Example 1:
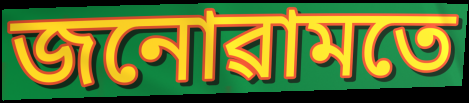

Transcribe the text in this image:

জনোৱামতে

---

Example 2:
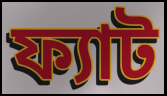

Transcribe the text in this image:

ফ্যাট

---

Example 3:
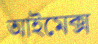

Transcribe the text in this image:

আইমেক্স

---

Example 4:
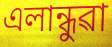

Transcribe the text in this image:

এলান্ধুৱা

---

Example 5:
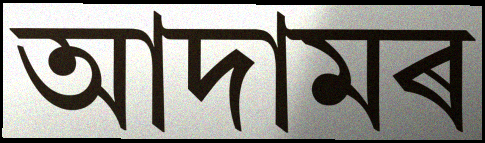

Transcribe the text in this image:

আদামৰ